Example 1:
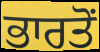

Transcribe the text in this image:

ਭਾਰਤੋਂ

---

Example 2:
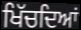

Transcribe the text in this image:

ਖਿੱਚਦਿਆਂ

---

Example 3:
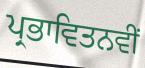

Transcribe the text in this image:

ਪ੍ਰਭਾਵਿਤਨਵੀਂ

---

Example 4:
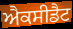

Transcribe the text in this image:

ਐਕਸੀਡੈਟ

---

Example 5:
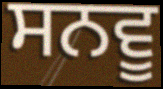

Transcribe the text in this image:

ਸਨਵੂ